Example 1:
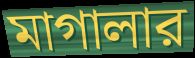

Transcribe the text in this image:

মাগালার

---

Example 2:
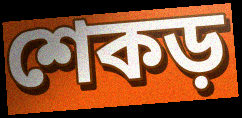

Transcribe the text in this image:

শেকড়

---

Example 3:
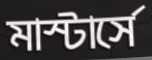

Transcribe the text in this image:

মাস্টার্সে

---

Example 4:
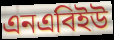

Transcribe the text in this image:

এনএবিইউ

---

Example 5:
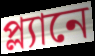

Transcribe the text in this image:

প্ল্যানে